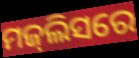
ମଜ୍‍ଲିସରେ